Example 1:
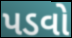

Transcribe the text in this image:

પડવો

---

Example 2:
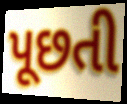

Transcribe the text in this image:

પૂછતી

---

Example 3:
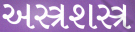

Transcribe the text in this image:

અસ્ત્રશસ્ત્ર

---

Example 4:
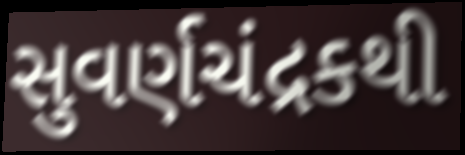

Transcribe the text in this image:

સુવર્ણચંદ્રકથી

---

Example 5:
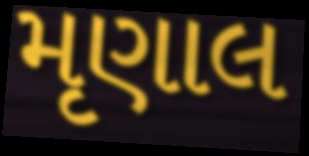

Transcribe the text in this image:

મૃણાલ